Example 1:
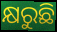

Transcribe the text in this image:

କ୍ଷରୁଛି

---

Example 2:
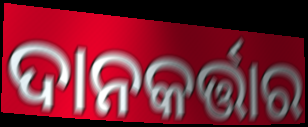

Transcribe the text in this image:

ଦାନକର୍ତ୍ତାର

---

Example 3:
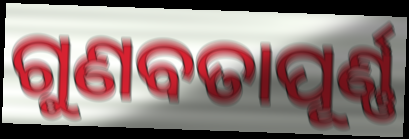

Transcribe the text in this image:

ଗୁଣବତାପୂର୍ଣ୍ଣ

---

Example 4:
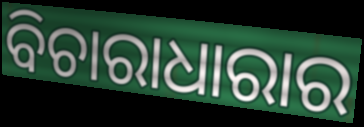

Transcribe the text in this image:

ବିଚାରାଧାରାର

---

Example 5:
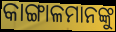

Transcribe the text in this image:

କାଙ୍ଗାଳମାନଙ୍କୁ